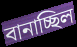
বানাচ্ছিল